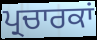
ਪ੍ਰਚਾਰਕਾਂ